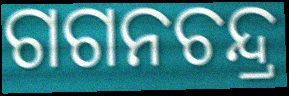
ଗଗନଚନ୍ଦ୍ର